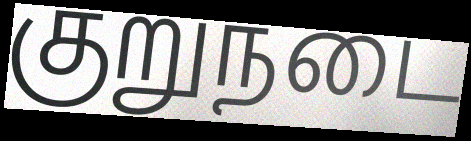
குறுநடை